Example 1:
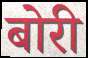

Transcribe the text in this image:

बोरी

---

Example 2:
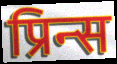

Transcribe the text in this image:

प्रिन्स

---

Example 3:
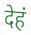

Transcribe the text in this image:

देहं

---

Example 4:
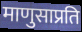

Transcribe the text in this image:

माणुसाप्रति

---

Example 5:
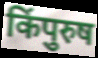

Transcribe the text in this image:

किंपुरुष